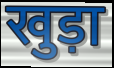
खुड़ा